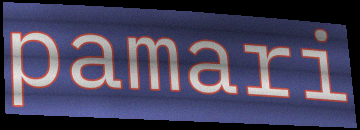
pamari